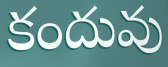
కందువు